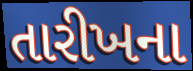
તારીખના